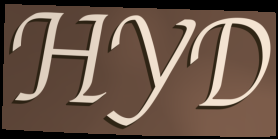
HYD